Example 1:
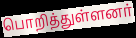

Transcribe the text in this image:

பொறித்துள்ளனர்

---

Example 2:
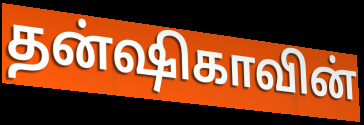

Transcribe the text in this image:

தன்ஷிகாவின்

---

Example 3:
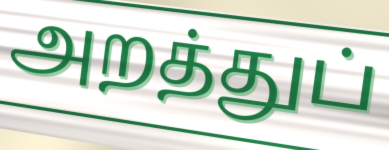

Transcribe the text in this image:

அறத்துப்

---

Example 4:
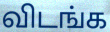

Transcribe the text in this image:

விடங்க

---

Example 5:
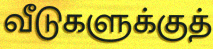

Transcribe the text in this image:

வீடுகளுக்குத்